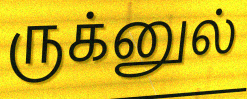
ருக்னுல்